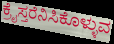
ಕ್ರೈಸ್ತರೆನಿಸಿಕೊಳ್ಳುವ